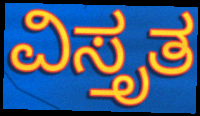
ವಿಸ್ತೃತ